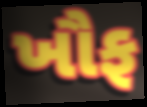
ખૌફ